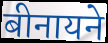
बीनायने